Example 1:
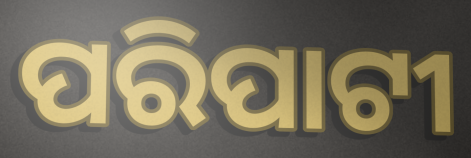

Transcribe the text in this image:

ପରିପାଟୀ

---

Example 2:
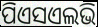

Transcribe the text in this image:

ପିଏସଏଲଭି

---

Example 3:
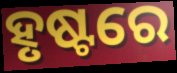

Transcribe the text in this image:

ହୃଷ୍ଟରେ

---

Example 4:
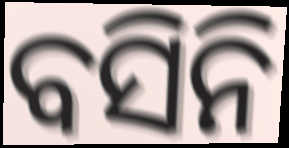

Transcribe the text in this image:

ବସିନି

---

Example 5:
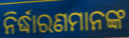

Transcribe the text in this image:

ନିର୍ଦ୍ଧାରଣମାନଙ୍କ